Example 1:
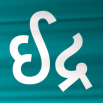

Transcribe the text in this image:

ઈદ્ર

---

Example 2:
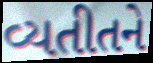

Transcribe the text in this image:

વ્યતીતને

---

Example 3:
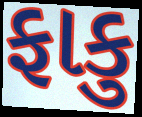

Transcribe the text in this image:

ફાકુ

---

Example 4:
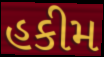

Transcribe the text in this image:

હકીમ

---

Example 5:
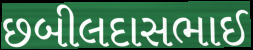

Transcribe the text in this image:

છબીલદાસભાઈ